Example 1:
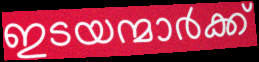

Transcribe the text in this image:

ഇടയന്മാർക്ക്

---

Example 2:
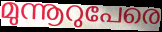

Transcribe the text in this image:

മുന്നൂറുപേരെ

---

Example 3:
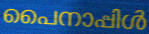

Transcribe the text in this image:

പൈനാപ്പിൾ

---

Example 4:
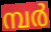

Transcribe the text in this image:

മ്പർ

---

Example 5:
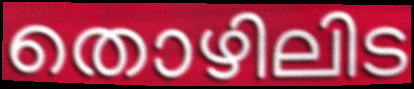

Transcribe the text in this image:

തൊഴിലിട